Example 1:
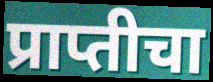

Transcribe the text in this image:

प्राप्तीचा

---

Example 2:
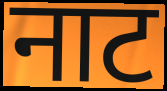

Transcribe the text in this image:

नाट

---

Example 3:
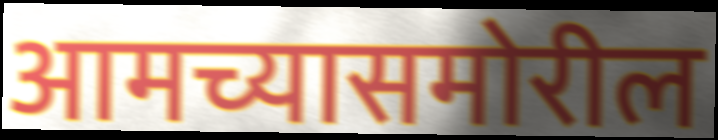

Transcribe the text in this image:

आमच्यासमोरील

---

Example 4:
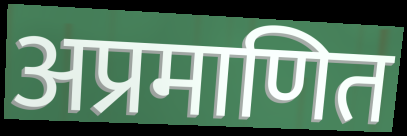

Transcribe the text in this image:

अप्रमाणित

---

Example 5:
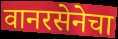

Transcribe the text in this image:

वानरसेनेचा